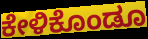
ಕೇಳಿಕೊಂಡೂ